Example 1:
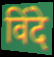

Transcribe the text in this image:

विंदे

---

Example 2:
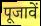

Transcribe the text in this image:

पूजावें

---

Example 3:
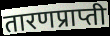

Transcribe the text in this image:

तारणप्राप्ती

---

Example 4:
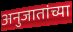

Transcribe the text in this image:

अनुजातांच्या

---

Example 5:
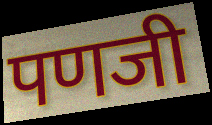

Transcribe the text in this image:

पणजी